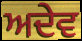
ਅਦੇਵ